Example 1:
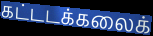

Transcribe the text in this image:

கட்டடக்கலைக்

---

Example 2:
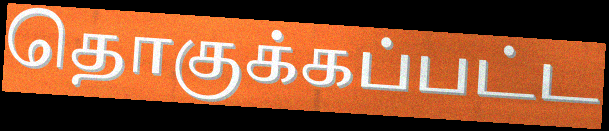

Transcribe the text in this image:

தொகுக்கப்பட்ட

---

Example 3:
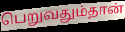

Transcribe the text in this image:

பெறுவதும்தான்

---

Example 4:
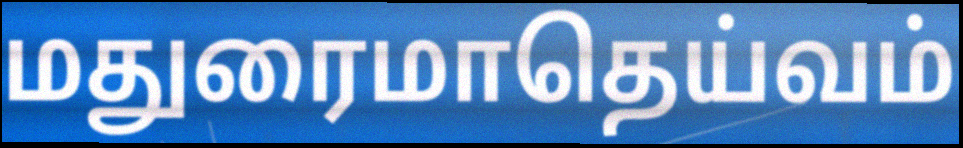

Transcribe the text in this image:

மதுரைமாதெய்வம்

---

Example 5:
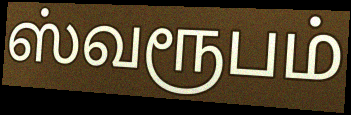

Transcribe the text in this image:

ஸ்வரூபம்